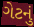
ગેટનું